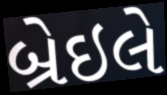
બ્રેઇલે